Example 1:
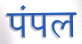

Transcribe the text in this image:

पंपल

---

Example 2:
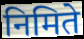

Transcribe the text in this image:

निमिते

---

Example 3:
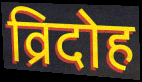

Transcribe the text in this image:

व्रिदोह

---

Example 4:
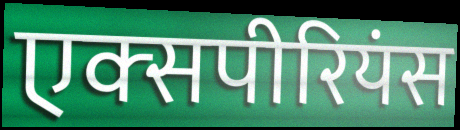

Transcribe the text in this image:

एक्‍सपीरियंस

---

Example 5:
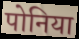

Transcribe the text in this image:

पोनिया